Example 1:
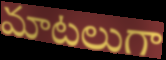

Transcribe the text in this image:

మాటలుగా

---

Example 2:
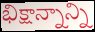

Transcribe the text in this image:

భిక్షాన్నాన్ని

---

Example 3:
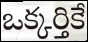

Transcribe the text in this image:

ఒక్కర్తికే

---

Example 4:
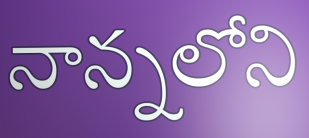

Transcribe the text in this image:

నాన్నలోని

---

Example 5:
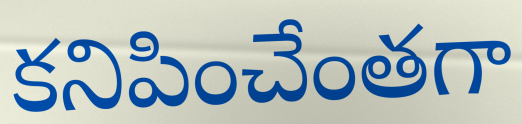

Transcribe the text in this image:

కనిపించేంతగా